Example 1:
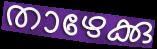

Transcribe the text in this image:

താഴേക്കു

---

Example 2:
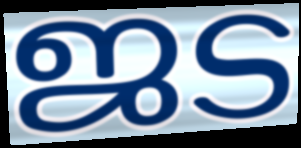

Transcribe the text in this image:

ജട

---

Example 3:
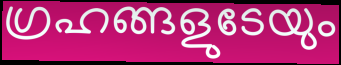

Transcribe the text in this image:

ഗ്രഹങ്ങളുടേയും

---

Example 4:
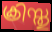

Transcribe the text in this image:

ക്രിസ്തു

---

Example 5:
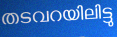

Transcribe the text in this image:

തടവറയിലിട്ടു